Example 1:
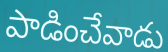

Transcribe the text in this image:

పాడించేవాడు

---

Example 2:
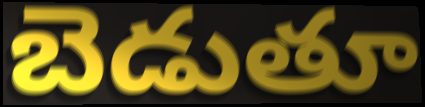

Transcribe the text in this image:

బెడుతూ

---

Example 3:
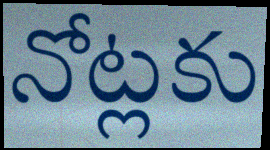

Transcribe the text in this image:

నోట్లకు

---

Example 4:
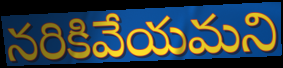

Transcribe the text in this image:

నరికివేయమని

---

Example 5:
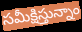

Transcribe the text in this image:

సమీక్షిస్తున్నాం